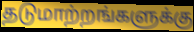
தடுமாற்றங்களுக்கு